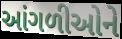
આંગળીઓને